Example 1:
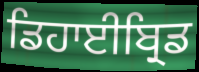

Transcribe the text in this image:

ਡਿਹਾਈਬ੍ਰਿਡ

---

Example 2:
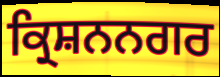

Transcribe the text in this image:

ਕ੍ਰਿਸ਼ਨਨਗਰ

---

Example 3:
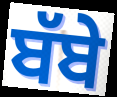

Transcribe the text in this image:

ਬੱਬੇ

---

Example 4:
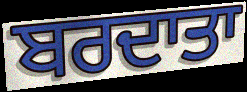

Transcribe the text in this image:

ਬਰਦਾਤਾ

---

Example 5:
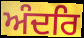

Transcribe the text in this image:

ਅੰਦਰਿ